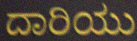
ದಾರಿಯು